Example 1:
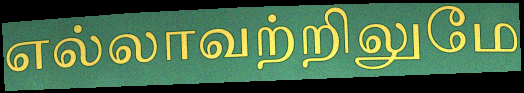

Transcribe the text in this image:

எல்லாவற்றிலுமே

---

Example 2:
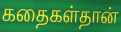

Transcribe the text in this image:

கதைகள்தான்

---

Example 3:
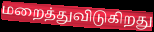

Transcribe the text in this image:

மறைத்துவிடுகிறது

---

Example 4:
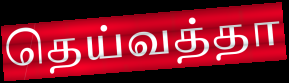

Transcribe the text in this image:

தெய்வத்தா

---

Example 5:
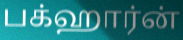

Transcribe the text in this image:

பக்ஹார்ன்